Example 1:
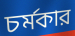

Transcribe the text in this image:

চর্মকার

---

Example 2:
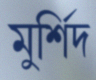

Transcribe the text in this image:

মুর্শিদ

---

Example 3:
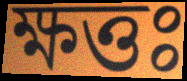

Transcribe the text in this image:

ক্ষত্তঃ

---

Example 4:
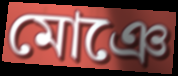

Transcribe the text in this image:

মোঞে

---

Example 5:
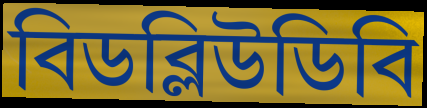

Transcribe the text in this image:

বিডব্লিউডিবি